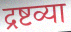
द्रष्टव्या